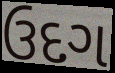
ઉદગ